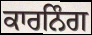
ਕਾਰਨਿੰਗ